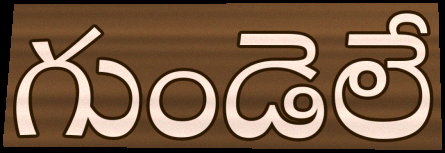
గుండెలే